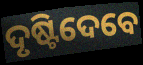
ଦୃଷ୍ଟିଦେବେ